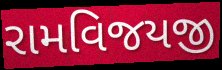
રામવિજયજી